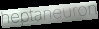
heptaneuron